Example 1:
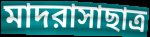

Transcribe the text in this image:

মাদরাসাছাত্র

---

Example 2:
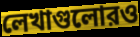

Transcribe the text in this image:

লেখাগুলোরও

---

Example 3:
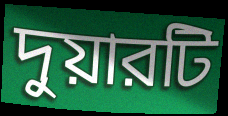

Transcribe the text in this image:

দুয়ারটি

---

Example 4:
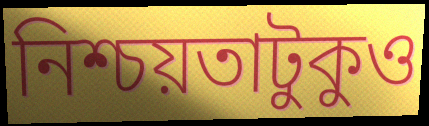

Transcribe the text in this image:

নিশ্চয়তাটুকুও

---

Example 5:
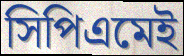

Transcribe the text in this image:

সিপিএমেই